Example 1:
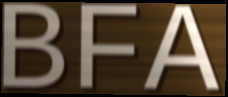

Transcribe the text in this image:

BFA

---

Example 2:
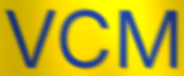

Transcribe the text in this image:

VCM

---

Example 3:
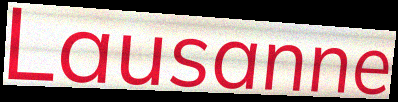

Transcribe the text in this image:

Lausanne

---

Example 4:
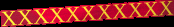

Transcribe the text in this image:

XXXXXXXXXXX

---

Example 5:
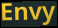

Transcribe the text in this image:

Envy